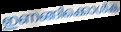
ഇണങ്ങിക്കൊൾക